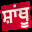
ਸ਼ਾਂਥੂ